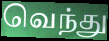
வெந்து